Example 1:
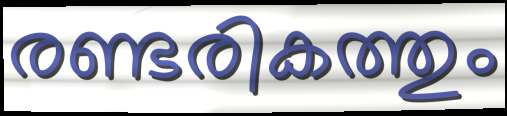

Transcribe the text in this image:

രണ്ടരികത്തും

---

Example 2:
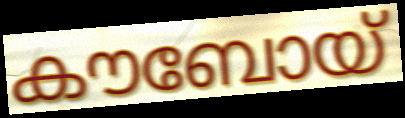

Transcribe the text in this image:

കൗബോയ്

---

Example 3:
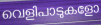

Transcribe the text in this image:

വെളിപാടുകളോ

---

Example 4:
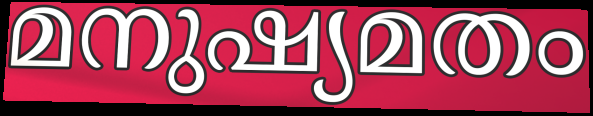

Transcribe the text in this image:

മനുഷ്യമതം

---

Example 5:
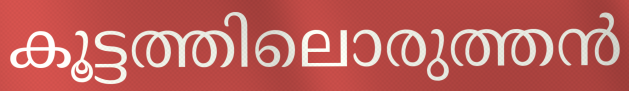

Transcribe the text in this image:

കൂട്ടത്തിലൊരുത്തൻ